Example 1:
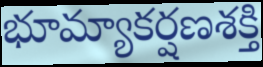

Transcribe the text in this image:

భూమ్యాకర్షణశక్తి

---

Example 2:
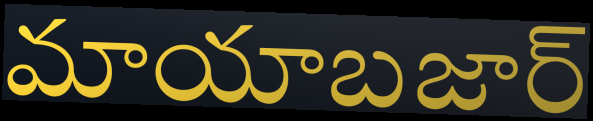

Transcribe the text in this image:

మాయాబజార్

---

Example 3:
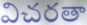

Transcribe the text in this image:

విచరతా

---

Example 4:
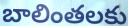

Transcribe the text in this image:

బాలింతలకు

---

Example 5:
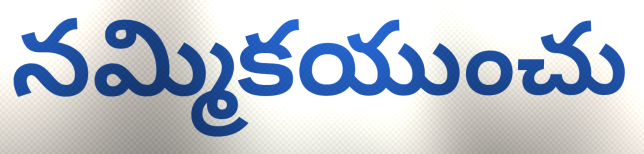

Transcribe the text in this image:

నమ్మికయుంచు